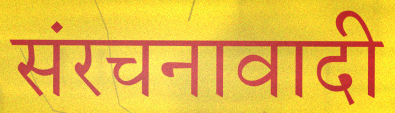
संरचनावादी